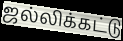
ஜல்லிக்கட்டு